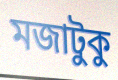
মজাটুকু